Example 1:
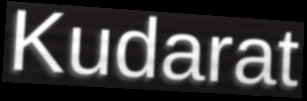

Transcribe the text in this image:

Kudarat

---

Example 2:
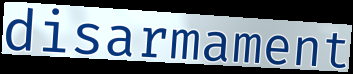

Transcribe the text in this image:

disarmament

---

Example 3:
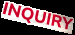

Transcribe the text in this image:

INQUIRY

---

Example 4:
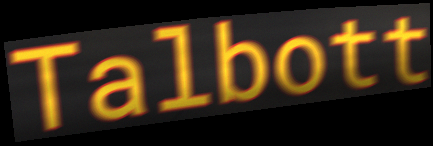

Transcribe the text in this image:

Talbott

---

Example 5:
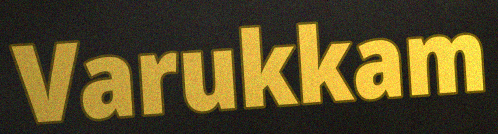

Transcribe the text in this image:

Varukkam